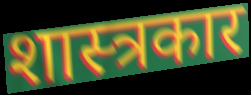
शास्त्रकार